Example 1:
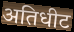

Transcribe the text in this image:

अतिधीट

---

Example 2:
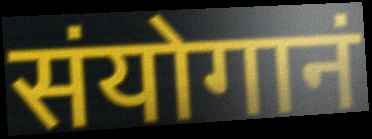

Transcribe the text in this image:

संयोगानं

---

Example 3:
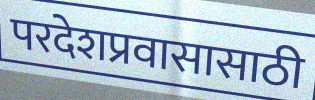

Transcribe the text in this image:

परदेशप्रवासासाठी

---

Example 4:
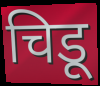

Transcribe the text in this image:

चिडू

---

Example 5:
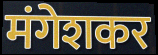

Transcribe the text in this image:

मंगेशकर